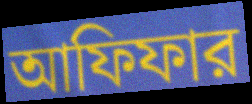
আফিফার